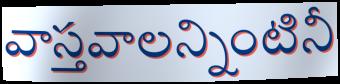
వాస్తవాలన్నింటినీ